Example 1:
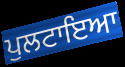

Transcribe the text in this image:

ਪੁਲਟਾਇਆ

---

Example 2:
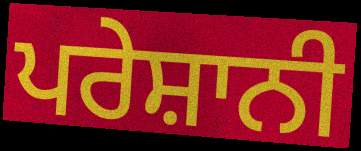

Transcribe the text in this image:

ਪਰੇਸ਼ਾਨੀ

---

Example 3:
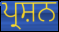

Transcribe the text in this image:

ਪ੍ਰਸ਼ਨ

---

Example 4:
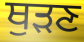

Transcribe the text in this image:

ਥੁੜਣ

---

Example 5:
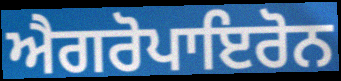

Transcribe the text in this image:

ਐਗਰੋਪਾਇਰੋਨ